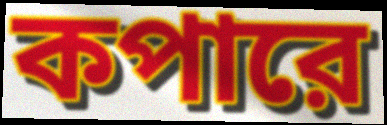
কপারে